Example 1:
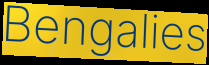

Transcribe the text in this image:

Bengalies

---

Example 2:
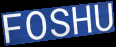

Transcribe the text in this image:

FOSHU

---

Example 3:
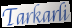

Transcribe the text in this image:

Tarkarli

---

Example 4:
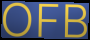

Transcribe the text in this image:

OFB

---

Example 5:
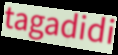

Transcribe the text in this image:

tagadidi